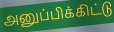
அனுப்பிக்கிட்டு